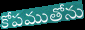
కోపముతోను